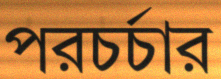
পরচর্চার